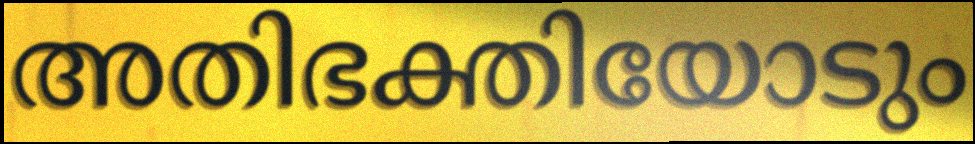
അതിഭക്തിയോടും